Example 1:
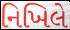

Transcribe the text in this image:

નિખિલે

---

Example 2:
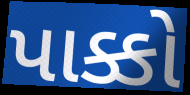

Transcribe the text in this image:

પાક્કો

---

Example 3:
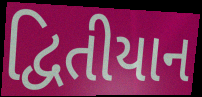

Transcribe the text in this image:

દ્વિતીયાન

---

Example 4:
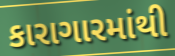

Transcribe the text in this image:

કારાગારમાંથી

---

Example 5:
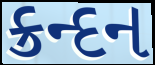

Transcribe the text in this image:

ક્રન્દન